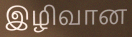
இழிவான